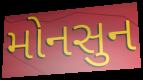
મોનસુન